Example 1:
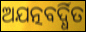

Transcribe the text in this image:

ଅଯତ୍ନବର୍ଦ୍ଧିତ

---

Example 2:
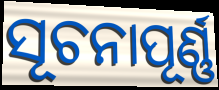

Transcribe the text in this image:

ସୂଚନାପୂର୍ଣ୍ଣ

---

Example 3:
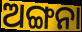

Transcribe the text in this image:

ଅଙ୍ଗନା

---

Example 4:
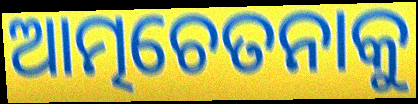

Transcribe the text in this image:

ଆତ୍ମଚେତନାକୁ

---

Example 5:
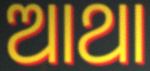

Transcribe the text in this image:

ଆଥା